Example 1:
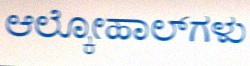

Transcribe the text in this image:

ಆಲ್ಕೋಹಾಲ್‌ಗಳು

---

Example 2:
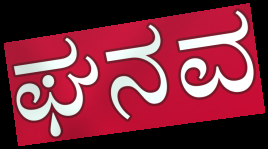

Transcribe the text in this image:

ಘನವ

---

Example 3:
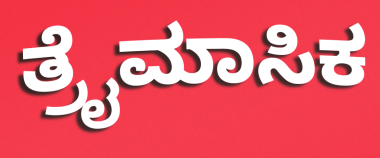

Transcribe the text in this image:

ತ್ರೈಮಾಸಿಕ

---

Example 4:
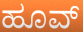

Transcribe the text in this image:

ಹೂವ್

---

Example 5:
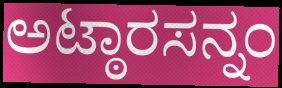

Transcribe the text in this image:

ಅಟ್ಠಾರಸನ್ನಂ